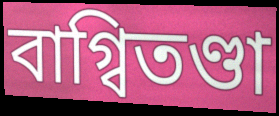
বাগ্বিতণ্ডা